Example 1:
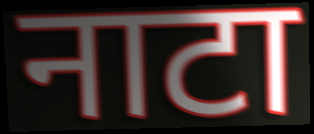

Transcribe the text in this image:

नाटा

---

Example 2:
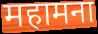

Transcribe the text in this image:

महामना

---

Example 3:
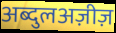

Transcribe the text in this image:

अब्दुलअज़ीज़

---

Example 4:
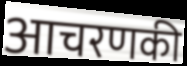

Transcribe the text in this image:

आचरणकी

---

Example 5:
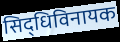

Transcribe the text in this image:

सिद्धिविनायक